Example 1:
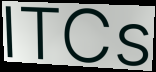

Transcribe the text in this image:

ITCs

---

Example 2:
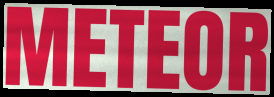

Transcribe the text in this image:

METEOR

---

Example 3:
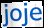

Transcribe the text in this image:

joje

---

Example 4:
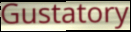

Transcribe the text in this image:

Gustatory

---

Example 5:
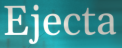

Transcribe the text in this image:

Ejecta